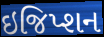
ઇજિપ્શન